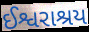
ઈશ્વરાશ્રય